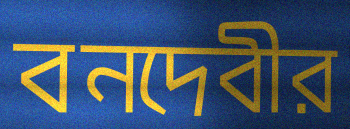
বনদেবীর